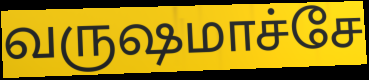
வருஷமாச்சே